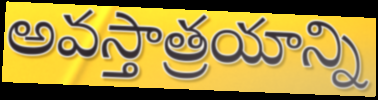
అవస్తాత్రయాన్ని